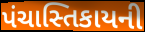
પંચાસ્તિકાયની